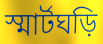
স্মার্টঘড়ি